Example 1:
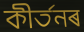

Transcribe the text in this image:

কীৰ্তনৰ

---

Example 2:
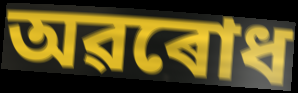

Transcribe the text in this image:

অৱৰোধ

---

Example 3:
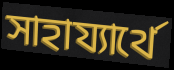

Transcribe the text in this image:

সাহায্যাৰ্থে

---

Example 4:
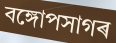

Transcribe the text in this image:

বঙ্গোপসাগৰ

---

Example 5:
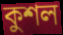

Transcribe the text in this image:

কুশল